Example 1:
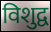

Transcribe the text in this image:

विशुद्व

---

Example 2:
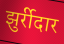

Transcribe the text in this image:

झुर्रीदार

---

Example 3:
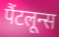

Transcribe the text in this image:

पैंटलून्स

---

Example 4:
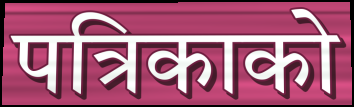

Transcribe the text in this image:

पत्रिकाको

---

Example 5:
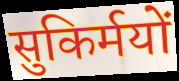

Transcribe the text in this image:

सुकिर्मयों